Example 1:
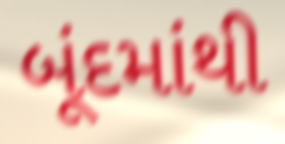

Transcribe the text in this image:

બૂંદમાંથી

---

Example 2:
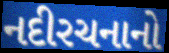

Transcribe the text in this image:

નદીરચનાનો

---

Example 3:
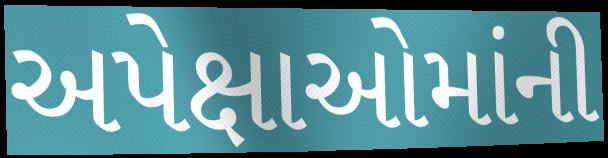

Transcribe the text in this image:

અપેક્ષાઓમાંની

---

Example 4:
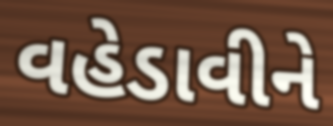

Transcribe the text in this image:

વહેડાવીને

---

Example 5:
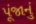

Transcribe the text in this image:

પૂંજાનું